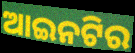
ଆଇନଟିର